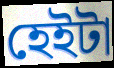
হেইটা